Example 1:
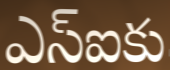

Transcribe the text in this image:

ఎస్ఐకు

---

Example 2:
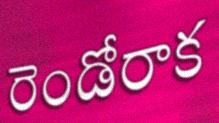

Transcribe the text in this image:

రెండోరాక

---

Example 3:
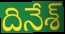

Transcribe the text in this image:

దినేశ్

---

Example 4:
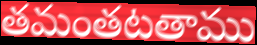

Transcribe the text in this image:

తమంతటతాము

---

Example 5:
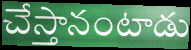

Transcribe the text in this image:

చేస్తానంటాడు